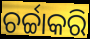
ଚର୍ଚ୍ଚାକରି